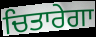
ਚਿਤਾਰੇਗਾ